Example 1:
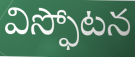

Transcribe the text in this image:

విస్ఫోటన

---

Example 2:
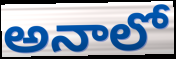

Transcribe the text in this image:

అనాలో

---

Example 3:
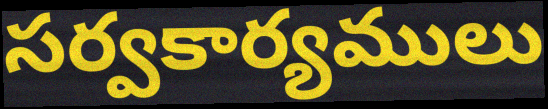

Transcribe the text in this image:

సర్వకార్యములు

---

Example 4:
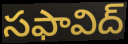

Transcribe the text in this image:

సఫావిద్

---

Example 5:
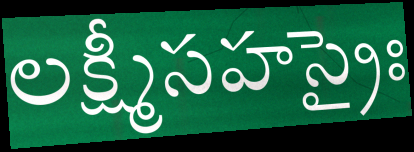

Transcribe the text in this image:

లక్ష్మీసహస్రైః